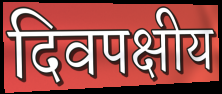
दिवपक्षीय